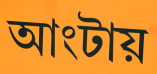
আংটায়